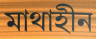
মাথাহীন